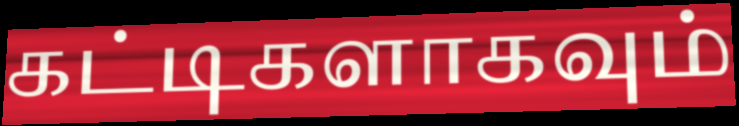
கட்டிகளாகவும்